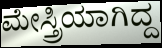
ಮೇಸ್ತ್ರಿಯಾಗಿದ್ದ